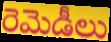
రెమెడీలు